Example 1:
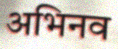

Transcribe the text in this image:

अभिनव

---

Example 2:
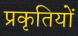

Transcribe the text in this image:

प्रकृतियों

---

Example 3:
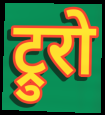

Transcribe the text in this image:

ट्रुरो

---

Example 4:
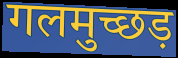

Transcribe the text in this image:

गलमुच्छड़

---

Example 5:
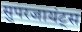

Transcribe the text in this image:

सुपरजायंट्स